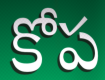
కోప